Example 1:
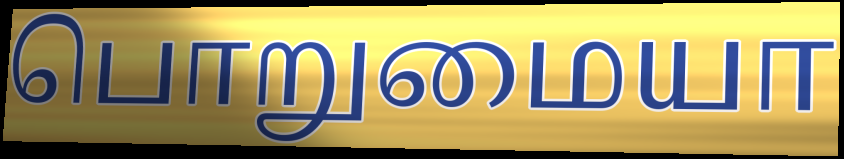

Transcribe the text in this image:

பொறுமையா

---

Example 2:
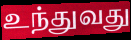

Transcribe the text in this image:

உந்துவது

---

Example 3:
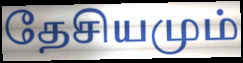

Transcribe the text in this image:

தேசியமும்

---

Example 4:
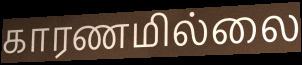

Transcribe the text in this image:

காரணமில்லை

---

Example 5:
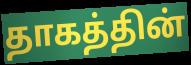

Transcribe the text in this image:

தாகத்தின்